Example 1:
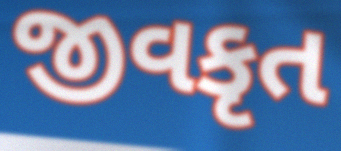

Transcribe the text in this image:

જીવકૃત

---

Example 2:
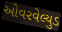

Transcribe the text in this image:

ઓવરવેલ્યુડ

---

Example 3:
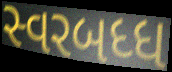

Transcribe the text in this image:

સ્વરબધ્ધ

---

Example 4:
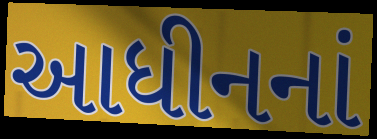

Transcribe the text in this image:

આધીનનાં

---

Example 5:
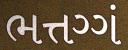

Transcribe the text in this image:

ભત્તગ્ગં